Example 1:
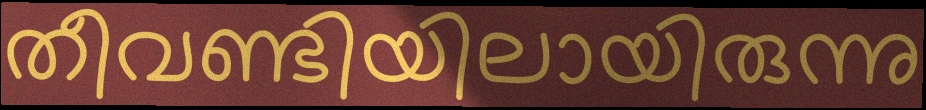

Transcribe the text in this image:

തീവണ്ടിയിലായിരുന്നു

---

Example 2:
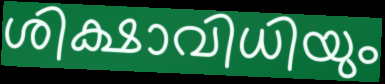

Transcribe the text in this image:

ശിക്ഷാവിധിയും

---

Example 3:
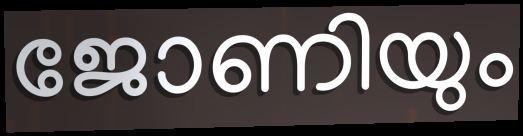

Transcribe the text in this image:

ജോണിയും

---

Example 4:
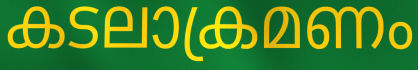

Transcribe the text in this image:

കടലാക്രമണം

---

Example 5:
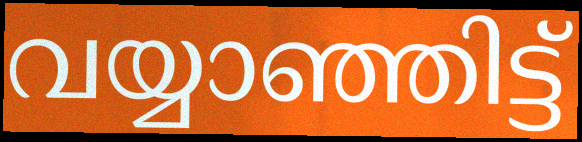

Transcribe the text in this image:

വയ്യാഞ്ഞിട്ട്